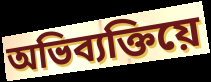
অভিব্যক্তিয়ে